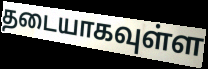
தடையாகவுள்ள